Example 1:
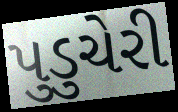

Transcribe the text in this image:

પુડુચેરી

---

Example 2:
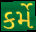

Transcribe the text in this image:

કર્મે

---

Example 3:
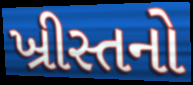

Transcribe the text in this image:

ખ્રીસ્તનો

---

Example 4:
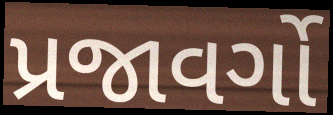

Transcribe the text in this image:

પ્રજાવર્ગો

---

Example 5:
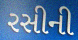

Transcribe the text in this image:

રસીની